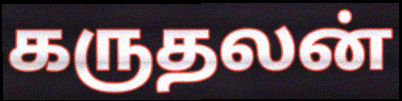
கருதலன்